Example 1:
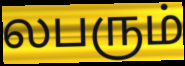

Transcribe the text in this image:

லபரும்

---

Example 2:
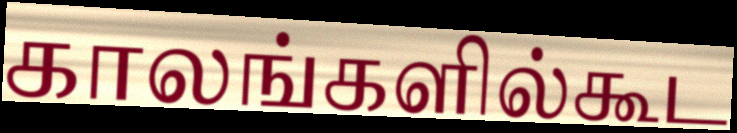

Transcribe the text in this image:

காலங்களில்கூட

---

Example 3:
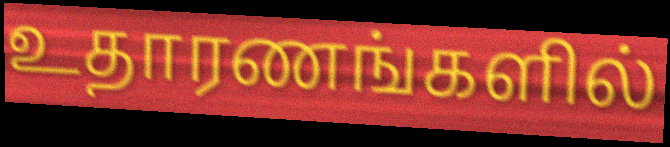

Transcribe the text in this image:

உதாரணங்களில்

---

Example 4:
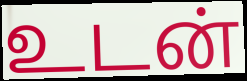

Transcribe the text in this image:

உடன்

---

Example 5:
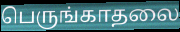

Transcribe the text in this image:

பெருங்காதலை